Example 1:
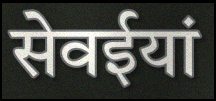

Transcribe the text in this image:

सेवईयां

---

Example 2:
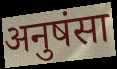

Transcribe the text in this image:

अनुषंसा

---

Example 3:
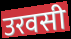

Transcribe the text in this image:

उरवसी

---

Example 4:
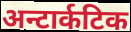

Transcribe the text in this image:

अन्टार्कटिक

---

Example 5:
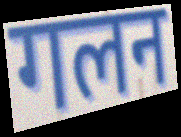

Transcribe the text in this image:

गलन